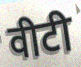
वीटी